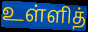
உள்ளித்